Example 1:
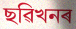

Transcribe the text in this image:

ছৱিখনৰ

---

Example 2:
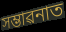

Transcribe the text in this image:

সম্ভাৱনাত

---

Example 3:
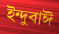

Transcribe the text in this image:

ইন্দুবাঈ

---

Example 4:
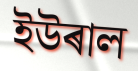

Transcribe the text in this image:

ইউৰাল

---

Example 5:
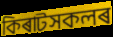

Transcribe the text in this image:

কিৰাটসকলৰ